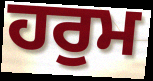
ਹਰੁਮ